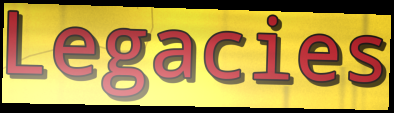
Legacies